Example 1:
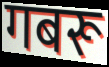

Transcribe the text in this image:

गबरू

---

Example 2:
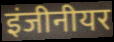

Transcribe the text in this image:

इंजीनीयर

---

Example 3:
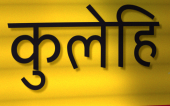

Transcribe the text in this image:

कुलेहि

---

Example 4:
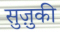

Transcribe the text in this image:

सुज़ुकी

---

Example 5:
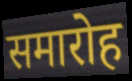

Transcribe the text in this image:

समारोह